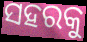
ସହରକୁ